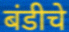
बंडीचे